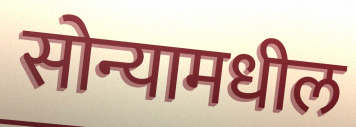
सोन्यामधील